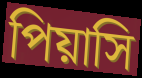
পিয়াসি